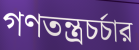
গণতন্ত্রচর্চার